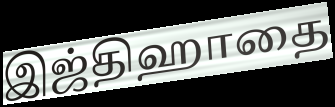
இஜ்திஹாதை